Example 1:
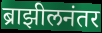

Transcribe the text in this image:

ब्राझीलनंतर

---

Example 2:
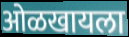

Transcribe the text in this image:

ओळखायला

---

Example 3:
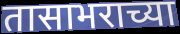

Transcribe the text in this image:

तासाभराच्या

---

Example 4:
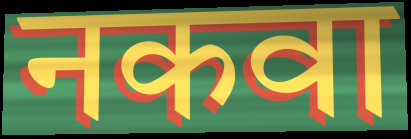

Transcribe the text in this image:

नकवा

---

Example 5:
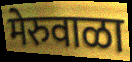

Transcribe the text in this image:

मेरुवाळा